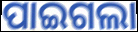
ପାଇଗଲା